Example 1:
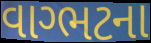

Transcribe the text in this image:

વાગ્ભટના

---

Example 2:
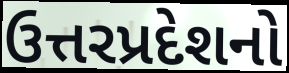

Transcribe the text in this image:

ઉત્તરપ્રદેશનો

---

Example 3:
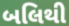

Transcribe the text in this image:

બલિથી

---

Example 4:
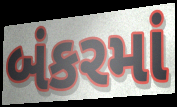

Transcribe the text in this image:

બંકરમાં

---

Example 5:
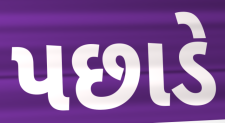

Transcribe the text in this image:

પછાડે